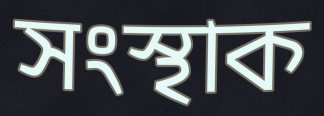
সংস্থাক